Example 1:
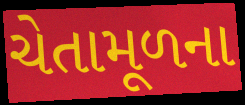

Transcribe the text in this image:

ચેતામૂળના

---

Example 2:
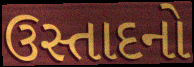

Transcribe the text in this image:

ઉસ્તાદનો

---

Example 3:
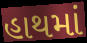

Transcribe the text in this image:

હાથમાં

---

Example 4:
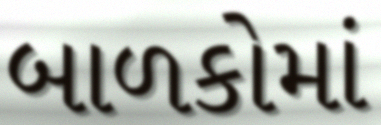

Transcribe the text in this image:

બાળકોમાં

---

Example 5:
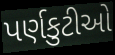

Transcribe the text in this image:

પર્ણકુટીઓ